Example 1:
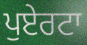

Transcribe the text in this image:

ਪੁਏਰਟਾ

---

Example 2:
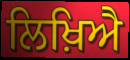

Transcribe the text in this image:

ਲਿਖ਼ਿਐ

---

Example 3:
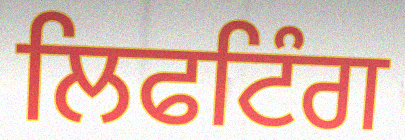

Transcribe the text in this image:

ਲਿਫਟਿੰਗ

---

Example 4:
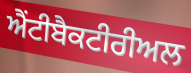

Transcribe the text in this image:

ਐਂਟੀਬੈਕਟੀਰੀਅਲ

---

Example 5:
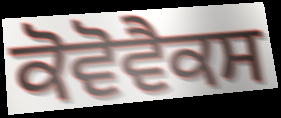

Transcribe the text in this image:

ਕੋਵੋਵੈਕਸ